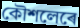
কৌশলেৰে